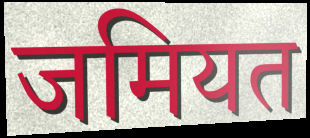
जमियत